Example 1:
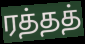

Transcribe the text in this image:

ரத்தத்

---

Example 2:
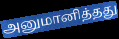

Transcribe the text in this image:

அனுமானித்தது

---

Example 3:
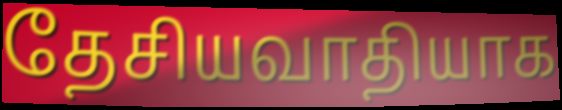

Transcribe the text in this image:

தேசியவாதியாக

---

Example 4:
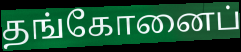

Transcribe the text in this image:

தங்கோனைப்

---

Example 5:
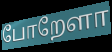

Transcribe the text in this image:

போறேளா